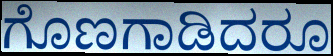
ಗೊಣಗಾಡಿದರೂ